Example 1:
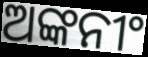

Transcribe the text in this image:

ଅଙ୍କନୀଂ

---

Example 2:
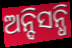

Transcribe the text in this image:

ଅନ୍ଦିସନ୍ଧି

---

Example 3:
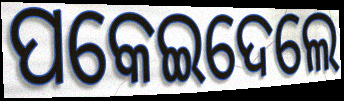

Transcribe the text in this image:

ପକେଇଦେଲେ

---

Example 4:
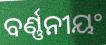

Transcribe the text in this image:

ବର୍ଣ୍ଣନୀୟଂ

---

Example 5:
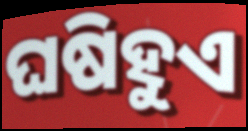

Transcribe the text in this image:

ଘଷିହୁଏ